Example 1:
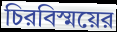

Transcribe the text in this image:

চিরবিস্ময়ের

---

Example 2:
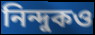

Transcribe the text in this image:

নিন্দুকও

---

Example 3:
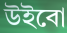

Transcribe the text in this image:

উইবো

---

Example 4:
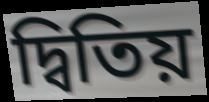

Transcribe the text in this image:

দ্বিতিয়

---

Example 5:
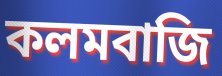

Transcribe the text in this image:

কলমবাজি